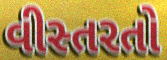
વીસ્તરતો